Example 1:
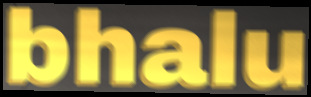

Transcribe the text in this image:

bhalu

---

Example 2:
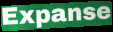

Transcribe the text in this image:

Expanse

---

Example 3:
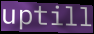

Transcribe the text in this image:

uptill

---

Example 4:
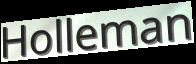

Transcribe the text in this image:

Holleman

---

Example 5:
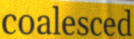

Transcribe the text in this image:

coalesced